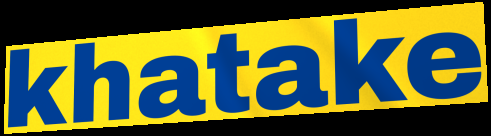
khatake